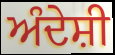
ਅੰਦੇਸ਼ੀ